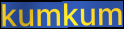
kumkum